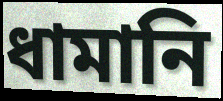
ধামানি